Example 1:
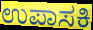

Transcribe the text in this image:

ಉಪಾಸಕಿ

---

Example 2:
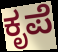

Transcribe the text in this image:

ಕೃಪೆ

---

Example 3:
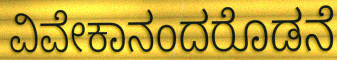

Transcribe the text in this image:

ವಿವೇಕಾನಂದರೊಡನೆ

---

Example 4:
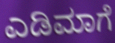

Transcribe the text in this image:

ಎಡಿಮಾಗೆ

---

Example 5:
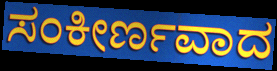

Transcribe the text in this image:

ಸಂಕೀರ್ಣವಾದ